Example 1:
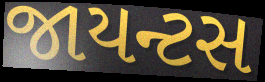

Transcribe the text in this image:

જાયન્ટસ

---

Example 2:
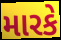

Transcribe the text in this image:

મારકે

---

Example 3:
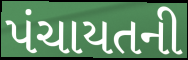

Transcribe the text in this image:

પંચાયતની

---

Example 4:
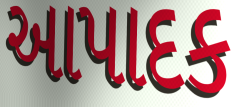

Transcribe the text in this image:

આપાદક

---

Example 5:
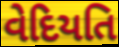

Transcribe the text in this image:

વેદિયતિ